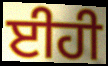
ਈਹੀ